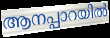
ആനപ്പാറയിൽ